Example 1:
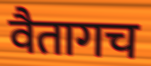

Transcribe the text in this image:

वैतागच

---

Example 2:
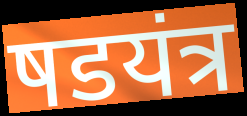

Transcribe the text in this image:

षडयंत्र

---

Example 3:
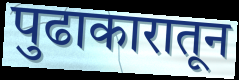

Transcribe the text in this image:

पुढाकारातून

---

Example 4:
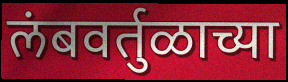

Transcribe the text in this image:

लंबवर्तुळाच्या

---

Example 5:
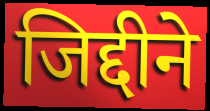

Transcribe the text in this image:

जिद्दीने